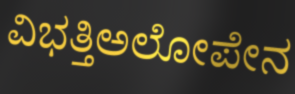
ವಿಭತ್ತಿಅಲೋಪೇನ